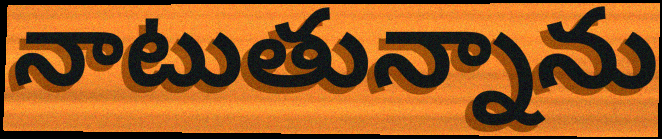
నాటుతున్నాను